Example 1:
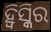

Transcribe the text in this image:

ହ୍ୱିସ୍କିର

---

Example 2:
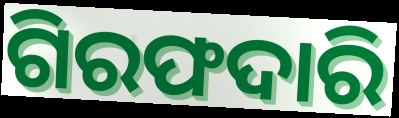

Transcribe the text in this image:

ଗିରଫଦାରି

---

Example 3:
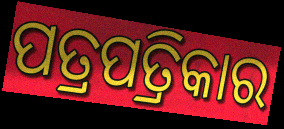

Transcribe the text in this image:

ପତ୍ରପତ୍ରିକାର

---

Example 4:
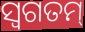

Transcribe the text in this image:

ସ୍ୱଗତମ୍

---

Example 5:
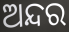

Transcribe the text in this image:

ଅନ୍ଦର